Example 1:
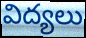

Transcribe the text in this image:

విద్యలు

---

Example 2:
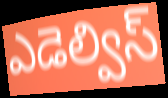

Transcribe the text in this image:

ఎడెల్విస్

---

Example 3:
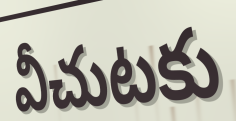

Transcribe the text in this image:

వీచుటకు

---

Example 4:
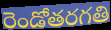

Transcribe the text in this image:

రెండోతరగతి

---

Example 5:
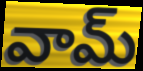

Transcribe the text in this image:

వామ్